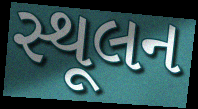
સ્થૂલન